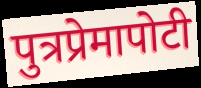
पुत्रप्रेमापोटी